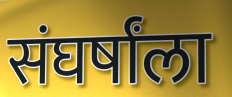
संघर्षांला